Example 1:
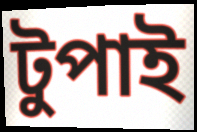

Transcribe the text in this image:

টুপাই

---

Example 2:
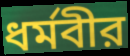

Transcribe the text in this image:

ধর্মবীর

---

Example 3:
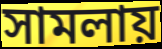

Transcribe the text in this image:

সামলায়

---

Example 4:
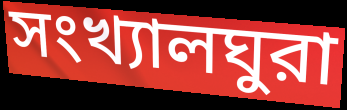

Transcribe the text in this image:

সংখ্যালঘুরা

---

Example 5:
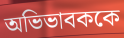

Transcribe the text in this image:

অভিভাবককে